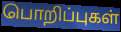
பொறிப்புகள்